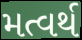
મત્વર્થ